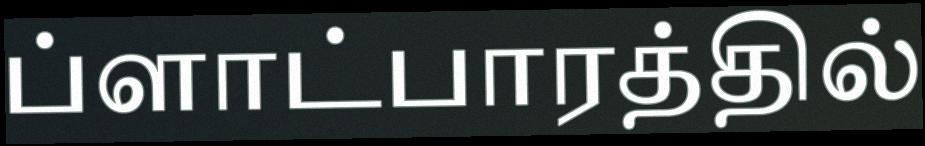
ப்ளாட்பாரத்தில்